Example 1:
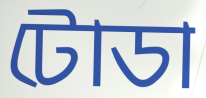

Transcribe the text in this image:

টোডা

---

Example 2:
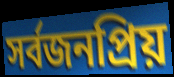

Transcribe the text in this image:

সর্বজনপ্রিয়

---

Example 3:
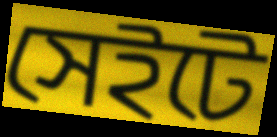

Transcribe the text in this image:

সেইটে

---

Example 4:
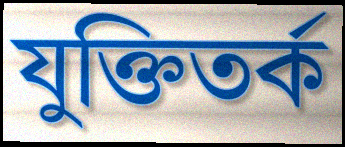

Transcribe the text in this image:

যুক্তিতর্ক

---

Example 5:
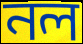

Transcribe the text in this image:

নল